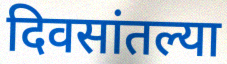
दिवसांतल्या